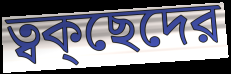
ত্বক্ছেদের